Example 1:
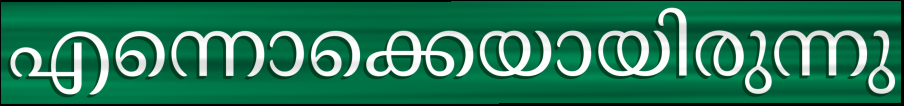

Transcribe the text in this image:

എന്നൊക്കെയായിരുന്നു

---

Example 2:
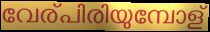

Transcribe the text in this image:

വേര്പിരിയുമ്പോള്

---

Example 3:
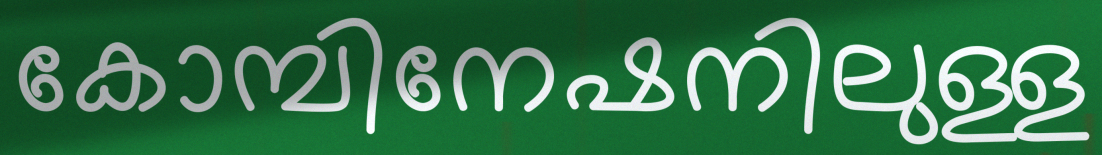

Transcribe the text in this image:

കോമ്പിനേഷനിലുള്ള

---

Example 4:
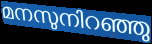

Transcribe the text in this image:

മനസുനിറഞ്ഞു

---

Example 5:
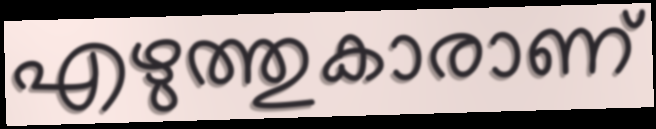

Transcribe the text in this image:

എഴുത്തുകാരാണ്